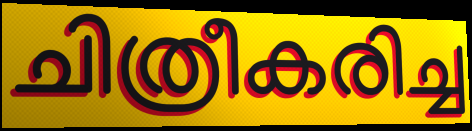
ചിത്രീകരിച്ച